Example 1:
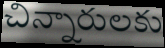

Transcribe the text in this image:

చిన్నారులకు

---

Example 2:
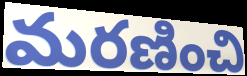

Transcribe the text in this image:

మరణించి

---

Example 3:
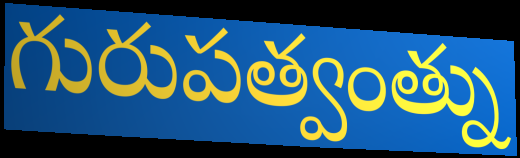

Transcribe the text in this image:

గురుపత్వంత్ను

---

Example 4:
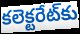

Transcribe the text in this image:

కలెక్టరేట్‌కు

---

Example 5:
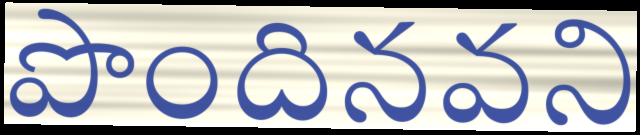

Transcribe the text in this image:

పొందినవని